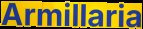
Armillaria